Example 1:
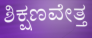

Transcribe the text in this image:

ಶಿಕ್ಷಣವೇತ್ತ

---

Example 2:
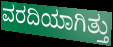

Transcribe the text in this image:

ವರದಿಯಾಗಿತ್ತು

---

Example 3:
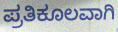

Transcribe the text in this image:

ಪ್ರತಿಕೂಲವಾಗಿ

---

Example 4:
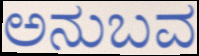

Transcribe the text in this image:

ಅನುಬವ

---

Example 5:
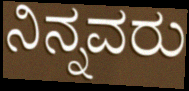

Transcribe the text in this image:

ನಿನ್ನವರು